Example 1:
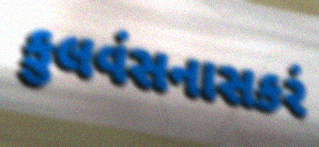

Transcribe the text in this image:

કુલવંસનાસકરં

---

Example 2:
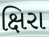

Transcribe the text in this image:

ક્ષિરા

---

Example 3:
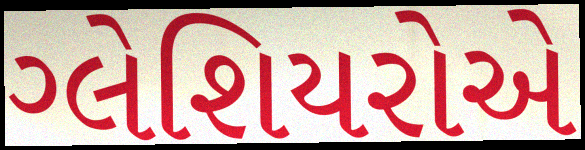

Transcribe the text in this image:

ગ્લેશિયરોએ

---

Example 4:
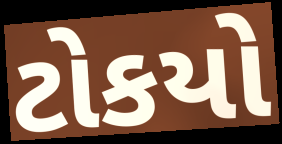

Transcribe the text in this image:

ટોકયો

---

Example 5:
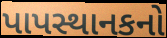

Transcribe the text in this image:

પાપસ્થાનકનો